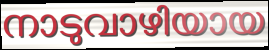
നാടുവാഴിയായ